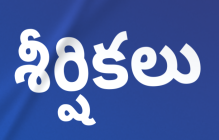
శీర్షికలు